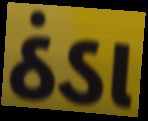
ઠંડા